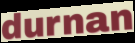
durnan